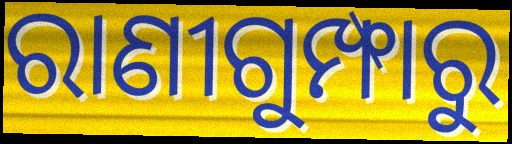
ରାଣୀଗୁମ୍ଫାରୁ